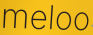
meloo